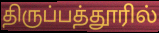
திருப்பத்தூரில்